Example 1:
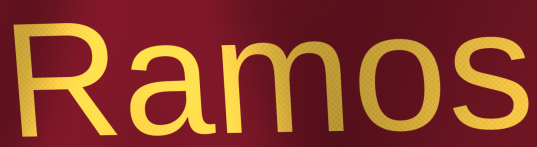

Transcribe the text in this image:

Ramos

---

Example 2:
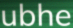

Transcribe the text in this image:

ubhe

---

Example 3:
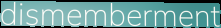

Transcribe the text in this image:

dismemberment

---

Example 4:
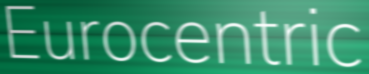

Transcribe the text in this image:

Eurocentric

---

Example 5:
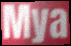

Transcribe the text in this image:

Mya